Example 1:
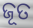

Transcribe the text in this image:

ଜୂତ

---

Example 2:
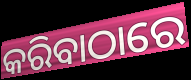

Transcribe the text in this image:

କରିବାଠାରେ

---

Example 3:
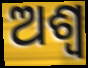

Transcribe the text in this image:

ଅଶ୍ବ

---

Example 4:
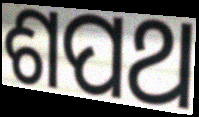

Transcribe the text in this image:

ଶପଥ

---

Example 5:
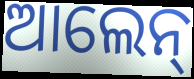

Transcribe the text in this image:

ଆଲେନ୍